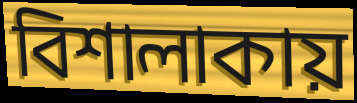
বিশালাকায়